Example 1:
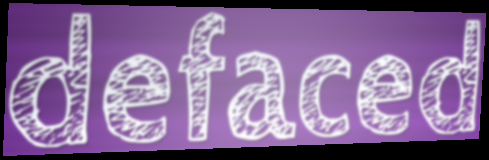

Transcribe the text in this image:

defaced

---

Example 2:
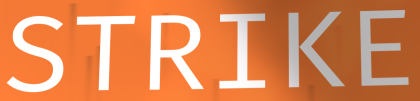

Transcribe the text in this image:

STRIKE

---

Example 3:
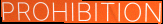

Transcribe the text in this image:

PROHIBITION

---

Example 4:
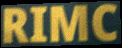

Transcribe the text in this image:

RIMC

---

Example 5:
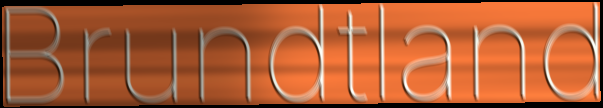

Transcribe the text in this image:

Brundtland